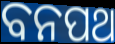
ବନପଥ